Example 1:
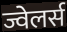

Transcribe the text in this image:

ज्वेलर्स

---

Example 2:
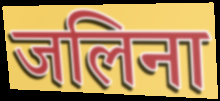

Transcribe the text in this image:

जलिना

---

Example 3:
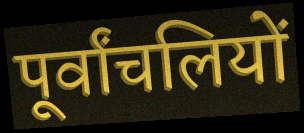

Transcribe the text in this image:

पूर्वांचलियों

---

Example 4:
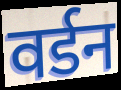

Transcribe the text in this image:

वर्डन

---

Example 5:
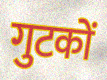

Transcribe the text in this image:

गुटकों